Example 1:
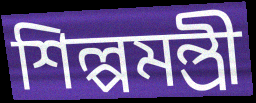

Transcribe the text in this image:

শিল্পমন্ত্রী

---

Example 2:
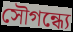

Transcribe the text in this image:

সৌগন্ধ্যে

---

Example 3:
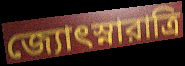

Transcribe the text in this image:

জ্যোৎস্নারাত্রি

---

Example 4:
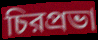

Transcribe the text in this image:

চিরপ্রভা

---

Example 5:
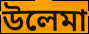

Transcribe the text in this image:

উলেমা